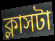
ক্লাসটা